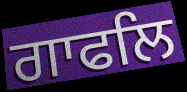
ਗਾਫਲਿ